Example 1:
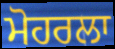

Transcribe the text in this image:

ਮੋਹਰਲਾ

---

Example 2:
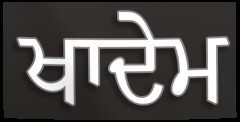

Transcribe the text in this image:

ਖਾਦੇਮ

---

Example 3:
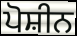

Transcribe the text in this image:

ਪੋਸ਼ੀਨ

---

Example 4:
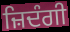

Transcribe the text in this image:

ਜ਼ਿਦੰਗੀ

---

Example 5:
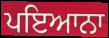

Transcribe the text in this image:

ਪਇਆਨਾ